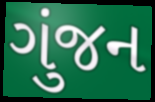
ગુંજન